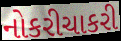
નોકરીચાકરી